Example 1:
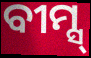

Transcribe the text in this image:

ବୀମ୍ସ୍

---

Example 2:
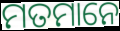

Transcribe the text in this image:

ମତମାନେ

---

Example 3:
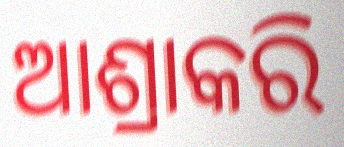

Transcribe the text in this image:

ଆଶ୍ରାକରି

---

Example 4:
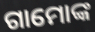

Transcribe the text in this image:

ଗାମୋଙ୍କ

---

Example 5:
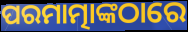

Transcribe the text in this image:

ପରମାତ୍ମାଙ୍କଠାରେ